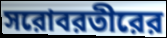
সরোবরতীরের